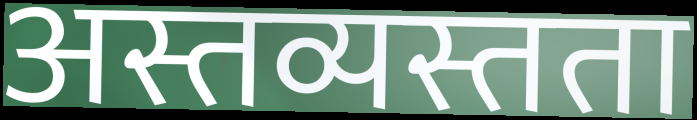
अस्तव्यस्तता